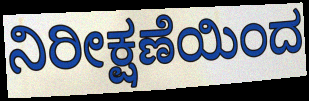
ನಿರೀಕ್ಷಣೆಯಿಂದ